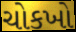
ચોકખો